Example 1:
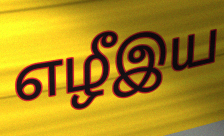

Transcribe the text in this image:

எழீஇய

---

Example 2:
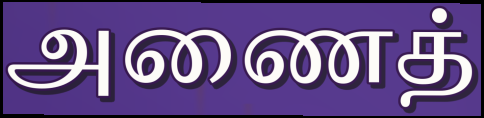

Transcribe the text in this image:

அணைத்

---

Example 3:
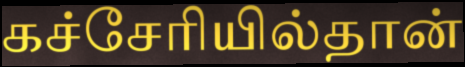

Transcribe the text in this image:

கச்சேரியில்தான்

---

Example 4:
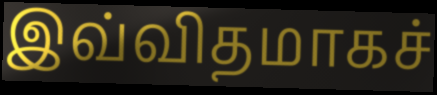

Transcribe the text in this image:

இவ்விதமாகச்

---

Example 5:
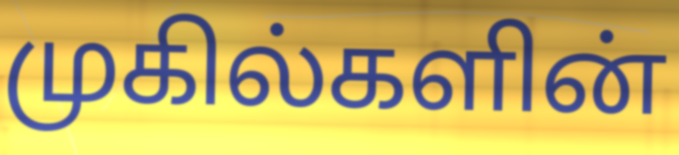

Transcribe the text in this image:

முகில்களின்